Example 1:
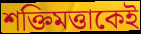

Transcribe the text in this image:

শক্তিমত্তাকেই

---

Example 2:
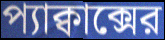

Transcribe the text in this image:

প্যাক্বাক্সের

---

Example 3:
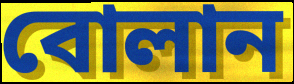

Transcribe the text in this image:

বোলান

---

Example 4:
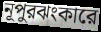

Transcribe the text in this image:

নূপুরঝংকারে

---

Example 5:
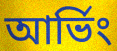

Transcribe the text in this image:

আর্ভিং